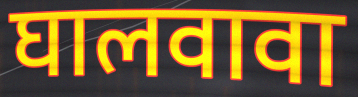
घालवावा